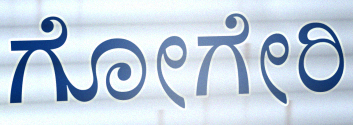
ಗೋಗೇರಿ